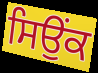
ਸਿਉਂਕ